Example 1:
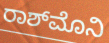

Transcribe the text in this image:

ರಾಶ್‌ಮೊನಿ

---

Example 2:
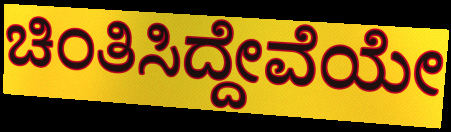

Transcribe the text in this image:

ಚಿಂತಿಸಿದ್ದೇವೆಯೇ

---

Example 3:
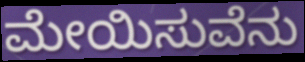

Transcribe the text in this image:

ಮೇಯಿಸುವೆನು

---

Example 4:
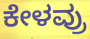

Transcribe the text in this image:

ಕೇಳವ್ರು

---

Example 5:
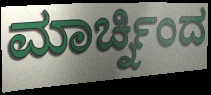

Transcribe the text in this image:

ಮಾರ್ಚ್ನಿಂದ